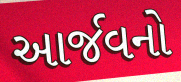
આર્જવનો